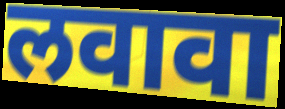
लवावा